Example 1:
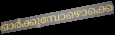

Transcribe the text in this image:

ഓർക്കുമ്പോഴൊക്കെ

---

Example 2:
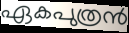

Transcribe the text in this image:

ഏകപുത്രൻ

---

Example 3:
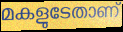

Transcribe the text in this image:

മകളുടേതാണ്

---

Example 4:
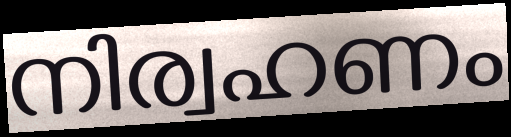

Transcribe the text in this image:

നിര്വഹണം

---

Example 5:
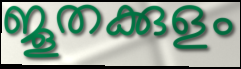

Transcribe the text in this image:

ജൂതക്കുളം